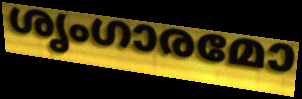
ശൃംഗാരമോ